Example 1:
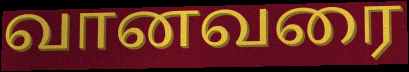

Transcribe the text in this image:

வானவரை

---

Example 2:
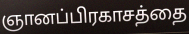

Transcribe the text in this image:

ஞானப்பிரகாசத்தை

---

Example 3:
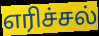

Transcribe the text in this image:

எரிச்சல்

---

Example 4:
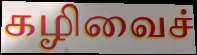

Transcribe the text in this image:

கழிவைச்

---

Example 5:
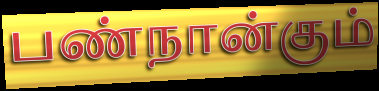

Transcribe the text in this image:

பண்நான்கும்